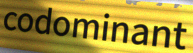
codominant